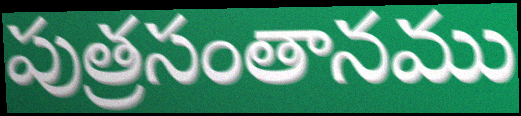
పుత్రసంతానము